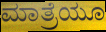
ಮಾತ್ರೆಯೂ